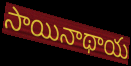
సాయినాథాయ